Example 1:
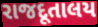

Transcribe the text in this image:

રાજદૂતાલય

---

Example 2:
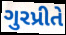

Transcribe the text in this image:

ગુરપ્રીતે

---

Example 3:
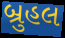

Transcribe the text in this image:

બ્રુહલ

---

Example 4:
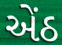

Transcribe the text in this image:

એંઠ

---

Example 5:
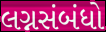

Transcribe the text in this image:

લગ્નસંબંધો